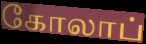
கோலாப்